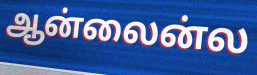
ஆன்லைன்ல